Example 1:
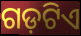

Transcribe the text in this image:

ଗଡ଼ଟିଏ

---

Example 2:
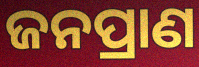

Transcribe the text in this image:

ଜନପ୍ରାଣ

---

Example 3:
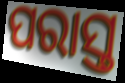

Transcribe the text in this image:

ପରାସ୍ତ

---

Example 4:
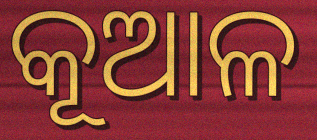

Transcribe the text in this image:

କୂଆଳ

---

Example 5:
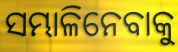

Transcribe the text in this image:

ସମ୍ଭାଳିନେବାକୁ